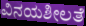
ವಿನಯಶೀಲತೆ